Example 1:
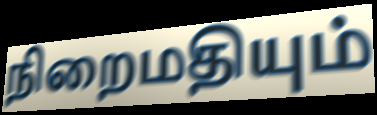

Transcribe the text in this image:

நிறைமதியும்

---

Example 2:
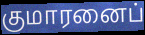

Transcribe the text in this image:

குமாரனைப்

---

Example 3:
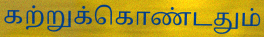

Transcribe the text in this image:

கற்றுக்கொண்டதும்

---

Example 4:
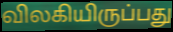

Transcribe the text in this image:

விலகியிருப்பது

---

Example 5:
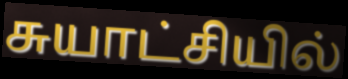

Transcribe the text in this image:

சுயாட்சியில்